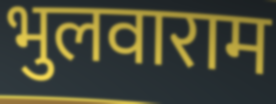
भुलवाराम